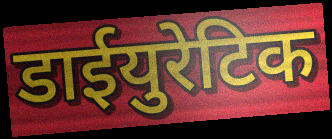
डाईयुरेटिक